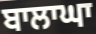
ਬਾਲਾਘਾ